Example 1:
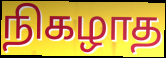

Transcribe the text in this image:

நிகழாத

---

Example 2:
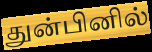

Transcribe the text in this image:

துன்பினில்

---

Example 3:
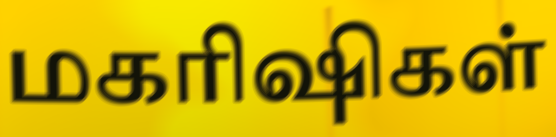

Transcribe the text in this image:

மகரிஷிகள்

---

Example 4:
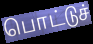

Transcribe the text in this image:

பொட்டுச்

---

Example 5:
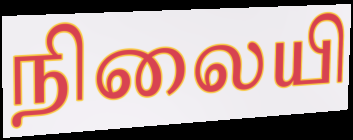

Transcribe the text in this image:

நிலையி